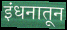
इंधनातून